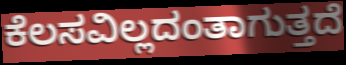
ಕೆಲಸವಿಲ್ಲದಂತಾಗುತ್ತದೆ